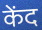
केंद